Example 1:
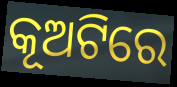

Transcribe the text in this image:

କୂଅଟିରେ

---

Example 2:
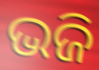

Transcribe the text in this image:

ଭଜି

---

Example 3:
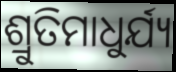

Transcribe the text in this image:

ଶ୍ରୁତିମାଧୁର୍ଯ୍ୟ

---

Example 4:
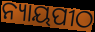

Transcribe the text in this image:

ନ୍ୟାୟପୀଠ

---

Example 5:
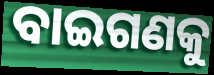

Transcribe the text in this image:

ବାଇଗଣକୁ